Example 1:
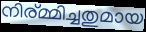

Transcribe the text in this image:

നിര്മ്മിച്ചതുമായ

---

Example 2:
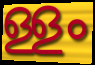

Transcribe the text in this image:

ള്ളം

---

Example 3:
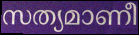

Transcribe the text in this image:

സത്യമാണീ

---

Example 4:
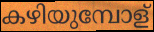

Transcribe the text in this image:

കഴിയുമ്പോള്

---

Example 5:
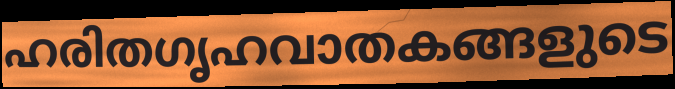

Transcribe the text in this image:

ഹരിതഗൃഹവാതകങ്ങളുടെ